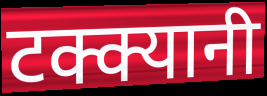
टक्क्यानी